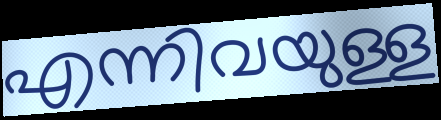
എന്നിവയുള്ള